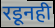
रडूनही